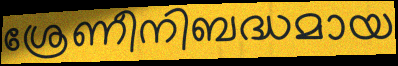
ശ്രേണീനിബദ്ധമായ